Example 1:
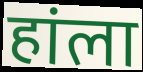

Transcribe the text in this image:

हांला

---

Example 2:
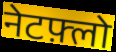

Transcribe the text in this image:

नेटफ़्लो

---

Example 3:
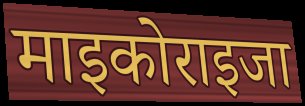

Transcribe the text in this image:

माइकोराइजा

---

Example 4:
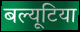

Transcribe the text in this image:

बल्यूटिया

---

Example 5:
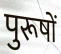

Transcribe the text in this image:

पुरूषों